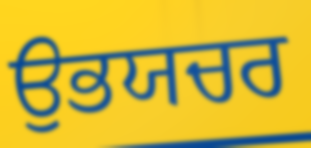
ਉਭਯਚਰ